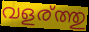
വളര്ത്തു